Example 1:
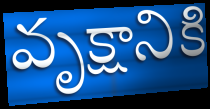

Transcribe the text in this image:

వృక్షానికి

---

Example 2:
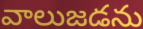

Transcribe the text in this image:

వాలుజడను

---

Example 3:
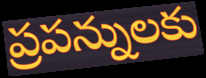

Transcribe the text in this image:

ప్రపన్నులకు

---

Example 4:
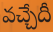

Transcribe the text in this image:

వచ్చేదీ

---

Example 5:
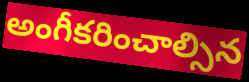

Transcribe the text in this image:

అంగీకరించాల్సిన